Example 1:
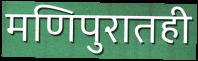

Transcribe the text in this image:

मणिपुरातही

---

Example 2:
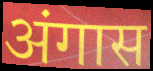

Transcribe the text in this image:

अंगास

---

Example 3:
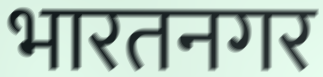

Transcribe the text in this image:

भारतनगर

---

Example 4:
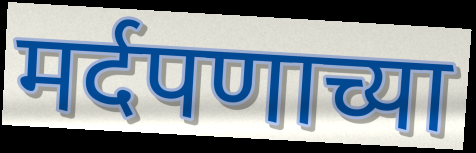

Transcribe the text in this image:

मर्दपणाच्या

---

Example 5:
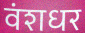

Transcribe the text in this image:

वंशधर